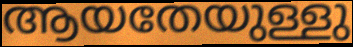
ആയതേയുള്ളു